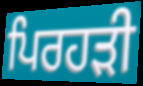
ਪਿਰਹੜੀ